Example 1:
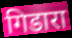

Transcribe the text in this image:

गिडारा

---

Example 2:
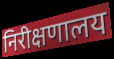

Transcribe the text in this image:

निरीक्षणालय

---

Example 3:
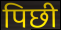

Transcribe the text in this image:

पिछी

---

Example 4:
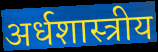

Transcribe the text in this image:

अर्धशास्त्रीय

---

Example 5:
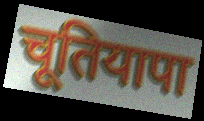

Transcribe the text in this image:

चूतियापा